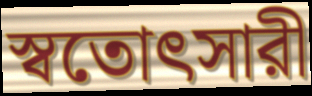
স্বতোৎসারী